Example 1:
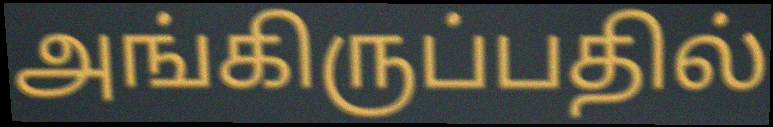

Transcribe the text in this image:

அங்கிருப்பதில்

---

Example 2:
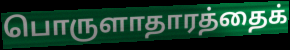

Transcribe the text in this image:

பொருளாதாரத்தைக்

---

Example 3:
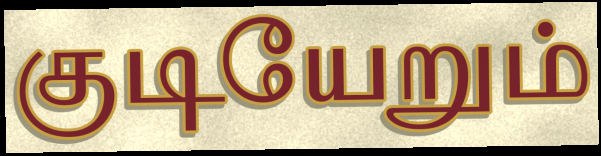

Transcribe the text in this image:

குடியேறும்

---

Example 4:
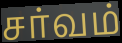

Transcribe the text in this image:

சர்வம்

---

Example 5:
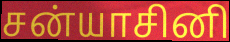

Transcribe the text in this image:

சன்யாசினி